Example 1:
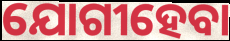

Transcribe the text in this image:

ଯୋଗୀହେବା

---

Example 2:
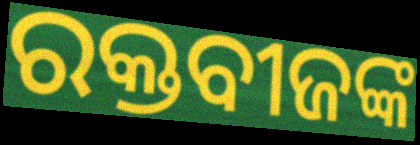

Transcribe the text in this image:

ରକ୍ତବୀଜଙ୍କ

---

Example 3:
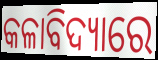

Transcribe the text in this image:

କଳାବିଦ୍ୟାରେ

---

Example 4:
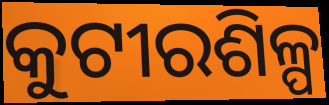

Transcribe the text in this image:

କୁଟୀରଶିଳ୍ପ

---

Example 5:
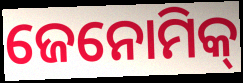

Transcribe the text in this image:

ଜେନୋମିକ୍